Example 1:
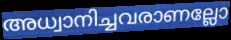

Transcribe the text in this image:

അധ്വാനിച്ചവരാണല്ലോ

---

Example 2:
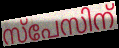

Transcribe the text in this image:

സ്പേസിന്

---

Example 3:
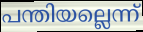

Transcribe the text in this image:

പന്തിയല്ലെന്ന്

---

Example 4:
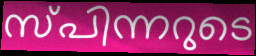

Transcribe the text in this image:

സ്പിന്നറുടെ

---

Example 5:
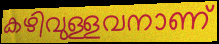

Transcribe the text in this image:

കഴിവുള്ളവനാണ്